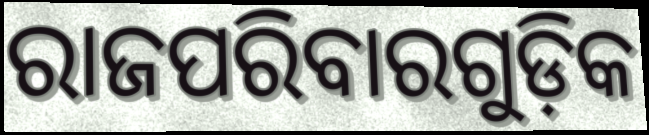
ରାଜପରିବାରଗୁଡ଼ିକ